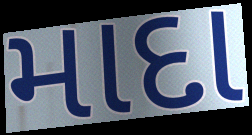
માદા